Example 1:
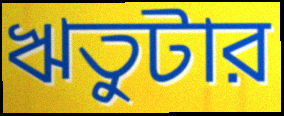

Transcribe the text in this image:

ঋতুটার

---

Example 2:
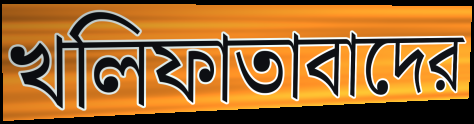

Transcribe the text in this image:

খলিফাতাবাদের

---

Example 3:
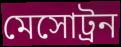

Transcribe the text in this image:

মেসোট্রন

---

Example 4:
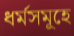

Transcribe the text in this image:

ধর্মসমূহে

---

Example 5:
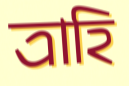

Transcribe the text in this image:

ত্রাহি